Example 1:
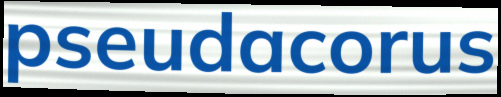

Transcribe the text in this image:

pseudacorus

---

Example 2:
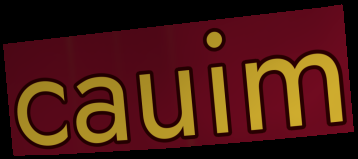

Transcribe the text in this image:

cauim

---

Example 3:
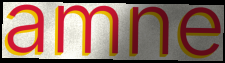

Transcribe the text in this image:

amne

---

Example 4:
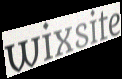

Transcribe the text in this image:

wixsite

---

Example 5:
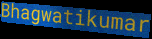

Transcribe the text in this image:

Bhagwatikumar